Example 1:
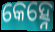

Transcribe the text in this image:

କେହ୍ନେ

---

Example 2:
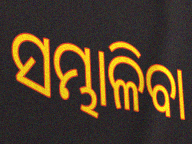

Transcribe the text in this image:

ସମ୍ଭାଳିବା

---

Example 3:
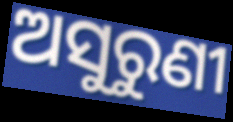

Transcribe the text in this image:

ଅସୁରୁଣୀ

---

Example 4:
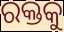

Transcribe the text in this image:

ରକ୍ତକୁ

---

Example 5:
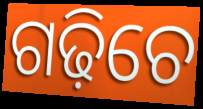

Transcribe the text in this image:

ଗଢ଼ିଚେ